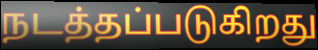
நடத்தப்படுகிறது